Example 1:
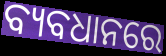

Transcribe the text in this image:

ବ୍ୟବଧାନରେ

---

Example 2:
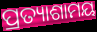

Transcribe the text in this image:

ପ୍ରତ୍ୟାଶାମୟ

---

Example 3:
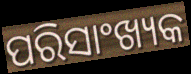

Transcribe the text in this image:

ପରିସାଂଖ୍ୟକ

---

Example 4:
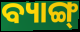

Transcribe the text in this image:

ବ୍ୟାଙ୍ଗ୍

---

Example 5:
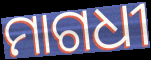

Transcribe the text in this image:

ମାଗଧୀ